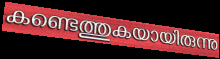
കണ്ടെത്തുകയായിരുന്നു